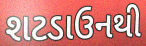
શટડાઉનથી